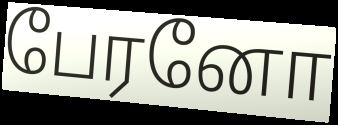
பேரனோ